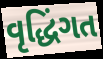
વૃદ્ધિંગત